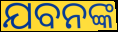
ଯବନଙ୍କ